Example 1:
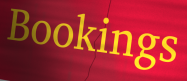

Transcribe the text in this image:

Bookings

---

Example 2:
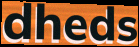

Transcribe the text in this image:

dheds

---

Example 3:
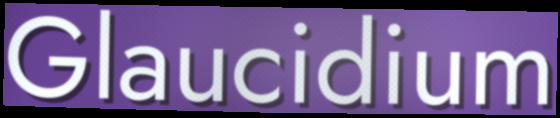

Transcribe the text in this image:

Glaucidium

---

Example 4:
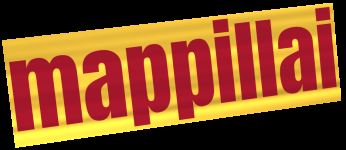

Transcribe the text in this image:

mappillai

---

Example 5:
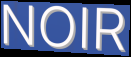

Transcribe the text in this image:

NOIR